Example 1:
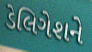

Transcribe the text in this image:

ડેલિગેશને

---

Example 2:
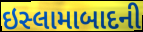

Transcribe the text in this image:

ઇસ્લામાબાદની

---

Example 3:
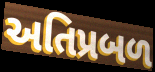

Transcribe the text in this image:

અતિપ્રબળ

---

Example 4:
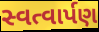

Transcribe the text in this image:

સ્વત્વાર્પણ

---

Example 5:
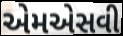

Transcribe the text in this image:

એમએસવી